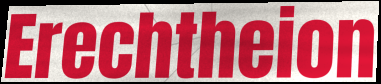
Erechtheion